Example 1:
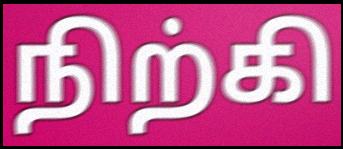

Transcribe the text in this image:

நிற்கி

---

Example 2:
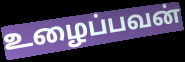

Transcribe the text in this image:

உழைப்பவன்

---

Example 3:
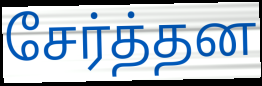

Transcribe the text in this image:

சேர்த்தன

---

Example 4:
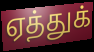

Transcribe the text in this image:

ஏத்துக்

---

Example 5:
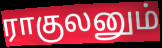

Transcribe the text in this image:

ராகுலனும்